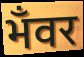
भँवर